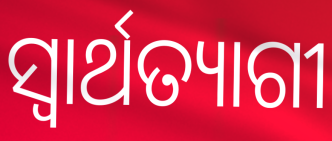
ସ୍ୱାର୍ଥତ୍ୟାଗୀ